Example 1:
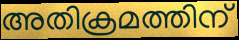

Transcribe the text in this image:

അതിക്രമത്തിന്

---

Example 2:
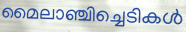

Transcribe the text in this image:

മൈലാഞ്ചിച്ചെടികൾ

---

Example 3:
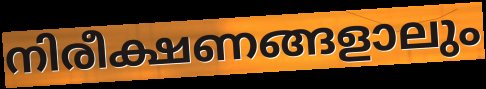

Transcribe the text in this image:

നിരീക്ഷണങ്ങളാലും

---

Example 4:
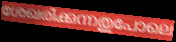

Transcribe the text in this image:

ശേഖരിക്കുന്നതുപോലെ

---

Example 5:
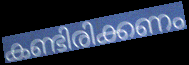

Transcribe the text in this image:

കണ്ടിരിക്കണം